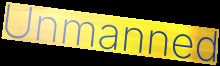
Unmanned